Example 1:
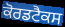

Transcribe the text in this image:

ਕੋਰਡਟੈਕਸ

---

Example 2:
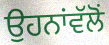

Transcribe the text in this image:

ਉਹਨਾਂਵੱਲੋਂ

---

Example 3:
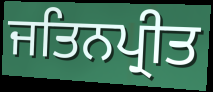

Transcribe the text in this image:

ਜਤਿਨਪ੍ਰੀਤ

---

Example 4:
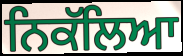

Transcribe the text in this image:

ਨਿਕੱਲਿਆ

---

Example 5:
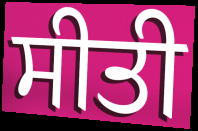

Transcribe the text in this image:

ਸੀਤੀ